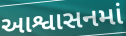
આશ્વાસનમાં